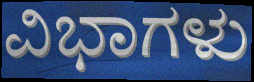
ವಿಭಾಗಳು